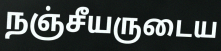
நஞ்சீயருடைய